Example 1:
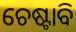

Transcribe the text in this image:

ଚେଷ୍ଟାବି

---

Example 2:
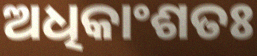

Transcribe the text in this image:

ଅଧିକାଂଶତଃ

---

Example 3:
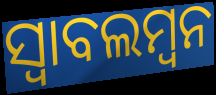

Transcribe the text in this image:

ସ୍ୱାବଲମ୍ବନ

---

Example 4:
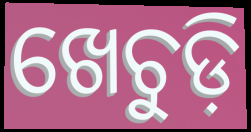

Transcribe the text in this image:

ଖେଚୁଡ଼ି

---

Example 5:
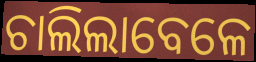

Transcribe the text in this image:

ଚାଲିଲାବେଳେ